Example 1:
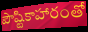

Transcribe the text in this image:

పౌష్టికాహారంతో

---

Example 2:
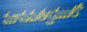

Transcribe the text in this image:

మానవత్వములో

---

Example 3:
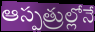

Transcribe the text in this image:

ఆస్పత్రుల్లోనే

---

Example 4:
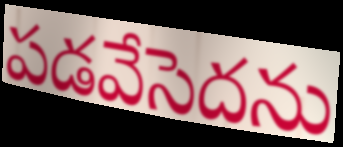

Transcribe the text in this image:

పడవేసెదను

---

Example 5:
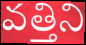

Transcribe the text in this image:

వత్తిని